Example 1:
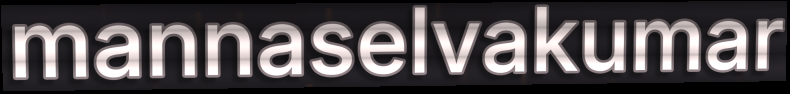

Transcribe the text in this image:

mannaselvakumar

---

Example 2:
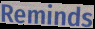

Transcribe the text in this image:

Reminds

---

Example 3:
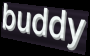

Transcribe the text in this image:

buddy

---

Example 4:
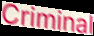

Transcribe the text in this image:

Criminal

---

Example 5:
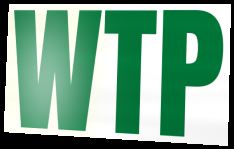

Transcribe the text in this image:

WTP